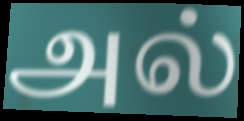
அல்